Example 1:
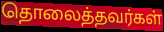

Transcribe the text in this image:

தொலைத்தவர்கள்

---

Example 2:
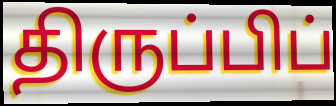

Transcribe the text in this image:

திருப்பிப்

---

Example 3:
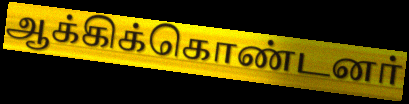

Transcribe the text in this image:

ஆக்கிக்கொண்டனர்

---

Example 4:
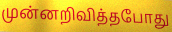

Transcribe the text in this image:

முன்னறிவித்தபோது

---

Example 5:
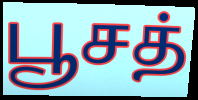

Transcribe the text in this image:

பூசத்